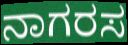
ನಾಗರಸ